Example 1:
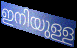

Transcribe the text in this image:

ഇനിയുള്ള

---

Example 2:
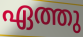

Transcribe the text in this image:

ഏത്തു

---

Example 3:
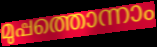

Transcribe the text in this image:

മുപ്പത്തൊന്നാം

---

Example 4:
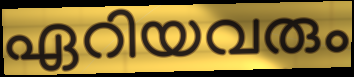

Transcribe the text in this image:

ഏറിയവരും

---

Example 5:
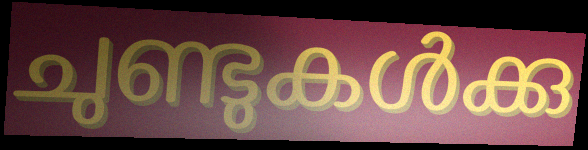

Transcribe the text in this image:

ചുണ്ടുകൾക്കു